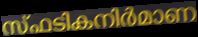
സ്ഫടികനിർമാണ